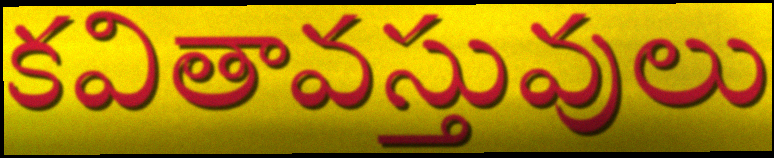
కవితావస్తువులు